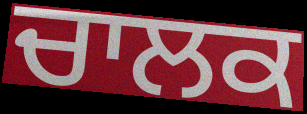
ਚਾਲਕ